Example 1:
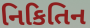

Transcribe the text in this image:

નિકિતિન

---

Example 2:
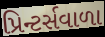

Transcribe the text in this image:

પ્રિન્ટર્સવાળા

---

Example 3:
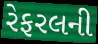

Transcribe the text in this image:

રેફરલની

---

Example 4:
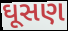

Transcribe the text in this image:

ઘૂસણ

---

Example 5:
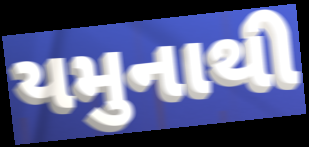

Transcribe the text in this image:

યમુનાથી